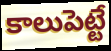
కాలుపెట్టే